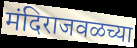
मंदिराजवळच्या